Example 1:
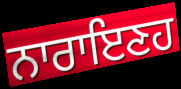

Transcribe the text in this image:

ਨਾਰਾਇਣਹ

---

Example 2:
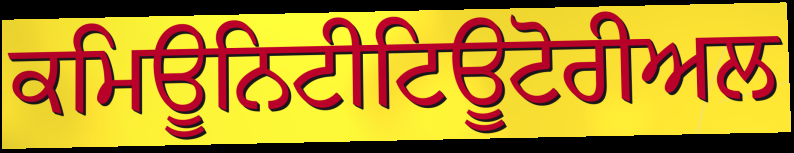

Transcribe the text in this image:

ਕਮਿਊਨਿਟੀਟਿਊਟੋਰੀਅਲ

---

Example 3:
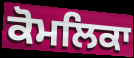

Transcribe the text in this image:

ਕੋਮਲਿਕਾ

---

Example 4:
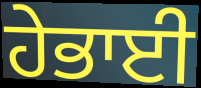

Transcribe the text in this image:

ਹੇਭਾਈ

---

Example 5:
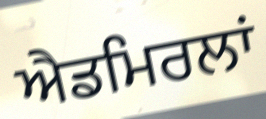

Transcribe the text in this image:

ਐਡਮਿਰਲਾਂ